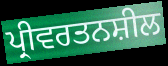
ਪ੍ਰੀਵਰਤਨਸ਼ੀਲ